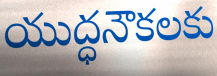
యుద్ధనౌకలకు